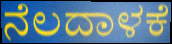
ನೆಲದಾಳಕೆ